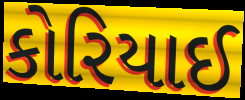
કોરિયાઈ